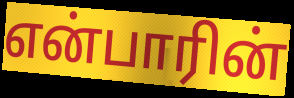
என்பாரின்